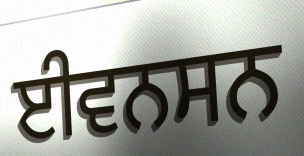
ਈਵਨਸਨ